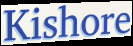
Kishore